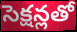
సెక్షన్లతో